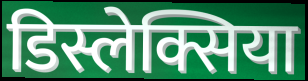
डिस्लेक्सिया